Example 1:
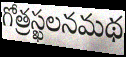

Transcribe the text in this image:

గోత్రస్ఖలనమథ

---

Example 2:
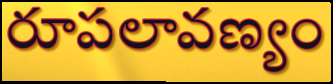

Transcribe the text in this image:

రూపలావణ్యం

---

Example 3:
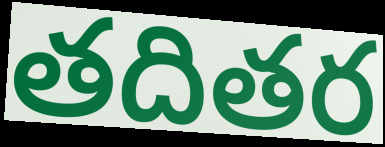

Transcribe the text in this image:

తదితర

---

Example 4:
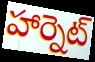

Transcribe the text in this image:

హార్నెట్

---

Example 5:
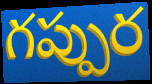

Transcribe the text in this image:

గప్పుర